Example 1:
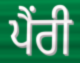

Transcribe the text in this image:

ਪੈਂਰੀ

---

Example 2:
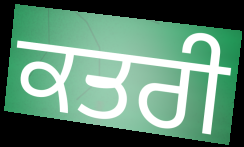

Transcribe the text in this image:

ਕਤਰੀ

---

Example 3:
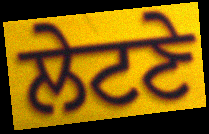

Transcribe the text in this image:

ਲੇਟਣੇ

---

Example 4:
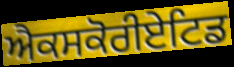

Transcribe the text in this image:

ਐਕਸਕੋਰੀਏਟਿਡ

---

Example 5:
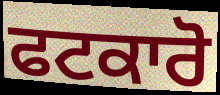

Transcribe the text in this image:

ਫਟਕਾਰੋ